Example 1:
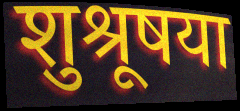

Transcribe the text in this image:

शुश्रूषया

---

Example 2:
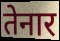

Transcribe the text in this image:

तेनार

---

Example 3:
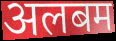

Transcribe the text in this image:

अलबम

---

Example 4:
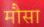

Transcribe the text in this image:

मौसा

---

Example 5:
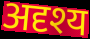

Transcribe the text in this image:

अदृश्य